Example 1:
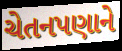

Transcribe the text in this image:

ચેતનપણાને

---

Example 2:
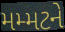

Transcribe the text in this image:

મમ્મટને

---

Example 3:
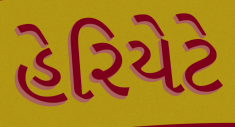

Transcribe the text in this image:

હેરિયેટે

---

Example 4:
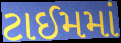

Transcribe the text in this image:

ટાઈમમાં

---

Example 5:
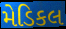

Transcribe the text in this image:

મેડિકલ